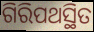
ଗିରିପଥସ୍ଥିତ